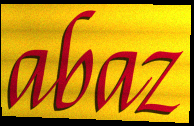
abaz